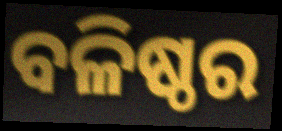
ବଳିଷ୍ଠର